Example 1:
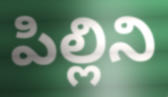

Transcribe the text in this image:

పిల్లిని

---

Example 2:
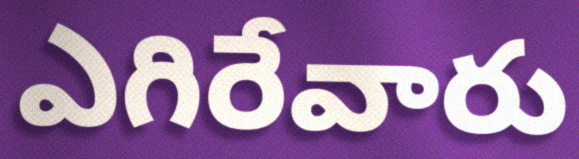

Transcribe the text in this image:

ఎగిరేవారు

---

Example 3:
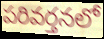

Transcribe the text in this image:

పరివర్తనలో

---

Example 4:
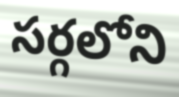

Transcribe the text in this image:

సర్గలోని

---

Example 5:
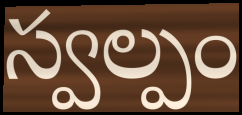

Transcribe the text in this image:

స్వల్పం